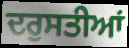
ਦਰੁਸਤੀਆਂ